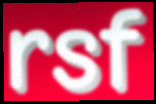
rsf